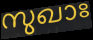
സുഖാഃ